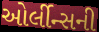
ઓર્લીન્સની